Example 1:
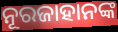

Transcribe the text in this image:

ନୂରଜାହାନଙ୍କ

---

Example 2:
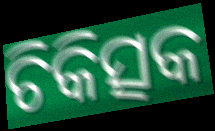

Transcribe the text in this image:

ଚିକିତ୍ସକ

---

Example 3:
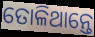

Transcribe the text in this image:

ତୋଳିଥାନ୍ତେ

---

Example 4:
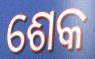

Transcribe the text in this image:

ଶେକ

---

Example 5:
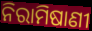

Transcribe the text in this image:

ନିରାମିଷାଣୀ